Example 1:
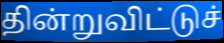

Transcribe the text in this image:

தின்றுவிட்டுச்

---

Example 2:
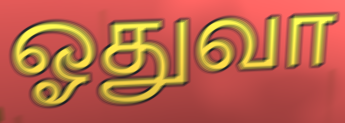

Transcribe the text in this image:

ஓதுவா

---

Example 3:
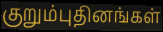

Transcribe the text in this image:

குறும்புதினங்கள்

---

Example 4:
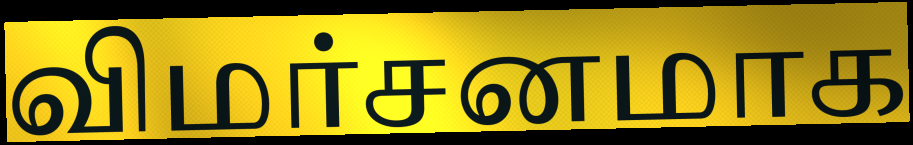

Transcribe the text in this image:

விமர்சனமாக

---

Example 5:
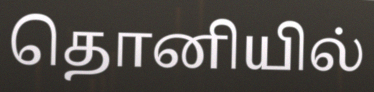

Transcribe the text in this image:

தொனியில்